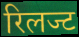
रिलज्ट